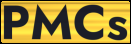
PMCs